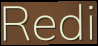
Redi